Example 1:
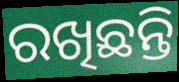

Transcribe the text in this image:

ରଖିଛନ୍ତି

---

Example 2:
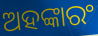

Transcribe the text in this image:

ଅହଙ୍କାରଂ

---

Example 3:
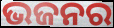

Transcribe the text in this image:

ଭଜନର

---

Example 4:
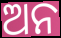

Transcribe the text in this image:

ଅନ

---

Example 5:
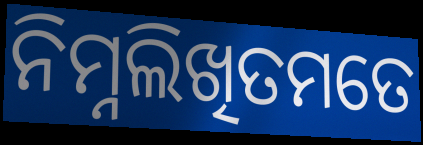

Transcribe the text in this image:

ନିମ୍ନଲିଖିତମତେ